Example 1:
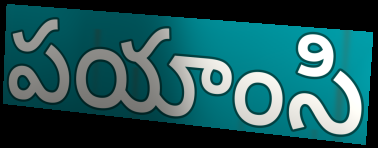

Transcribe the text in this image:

పయాంసి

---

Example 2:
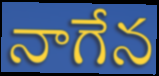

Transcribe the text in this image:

నాగేన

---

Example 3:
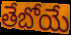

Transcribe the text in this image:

తేబోయే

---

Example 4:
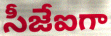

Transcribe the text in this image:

సీజేఐగా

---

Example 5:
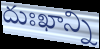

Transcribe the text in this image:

దుఃఖాన్ని